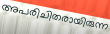
അപരിചിതരായിരുന്ന